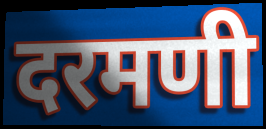
दरमणी